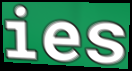
ies